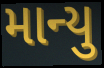
માન્યુ